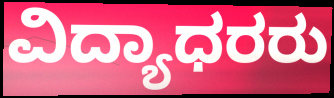
ವಿದ್ಯಾಧರರು